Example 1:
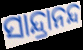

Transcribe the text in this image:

ସାନ୍ଦ୍ରାନନ୍ଦ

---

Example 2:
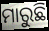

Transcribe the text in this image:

ମାରୁଛି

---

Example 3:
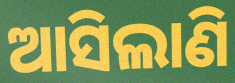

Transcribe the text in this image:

ଆସିଲାଣି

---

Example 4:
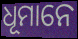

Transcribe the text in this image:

ଧୂମାନେ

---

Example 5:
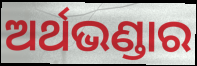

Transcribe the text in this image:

ଅର୍ଥଭଣ୍ଡାର